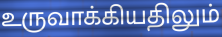
உருவாக்கியதிலும்